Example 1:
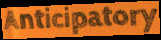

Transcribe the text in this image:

Anticipatory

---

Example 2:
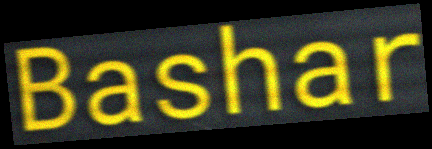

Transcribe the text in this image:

Bashar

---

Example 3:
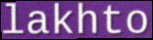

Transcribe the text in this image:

lakhto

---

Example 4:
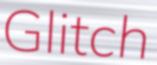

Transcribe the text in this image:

Glitch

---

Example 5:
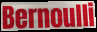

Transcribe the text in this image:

Bernoulli